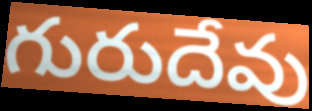
గురుదేవు